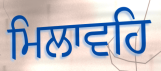
ਮਿਲਾਵਹਿ